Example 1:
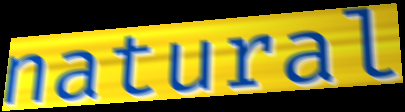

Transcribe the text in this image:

natural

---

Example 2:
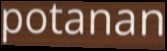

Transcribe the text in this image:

potanan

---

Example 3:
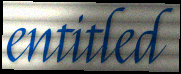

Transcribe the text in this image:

entitled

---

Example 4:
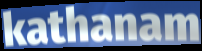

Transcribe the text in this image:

kathanam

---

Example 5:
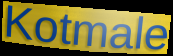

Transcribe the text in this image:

Kotmale